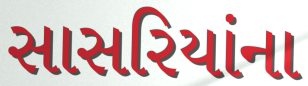
સાસરિયાંના